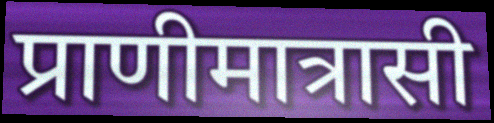
प्राणीमात्रासी